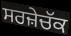
ਸਰਜ਼ੇਚੱਕ